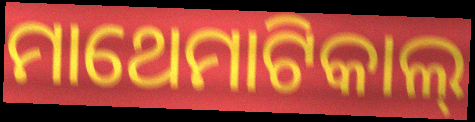
ମାଥେମାଟିକାଲ୍